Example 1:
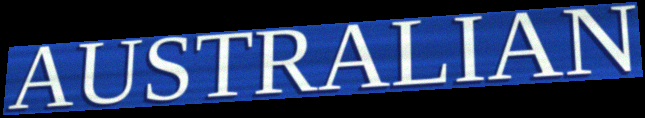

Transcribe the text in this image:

AUSTRALIAN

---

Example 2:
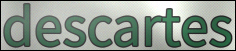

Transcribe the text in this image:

descartes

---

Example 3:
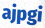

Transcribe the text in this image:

ajpgi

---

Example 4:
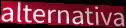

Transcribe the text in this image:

alternativa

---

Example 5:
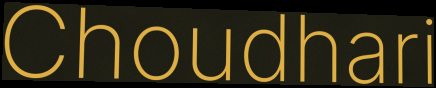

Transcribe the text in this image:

Choudhari